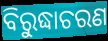
ବିରୁଦ୍ଧାଚରଣ